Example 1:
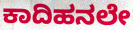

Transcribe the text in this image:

ಕಾದಿಹನಲೇ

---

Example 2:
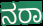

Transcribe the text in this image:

ನರಾ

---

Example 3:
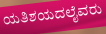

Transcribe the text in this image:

ಯತಿಶಯದಲೈವರು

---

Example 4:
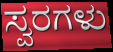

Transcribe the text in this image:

ಸ್ವರಗಳು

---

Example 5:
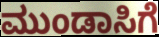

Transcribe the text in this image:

ಮುಂಡಾಸಿಗೆ